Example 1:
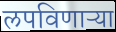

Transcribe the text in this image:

लपविणाऱ्या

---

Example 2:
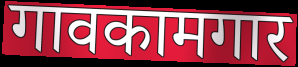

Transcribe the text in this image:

गावकामगार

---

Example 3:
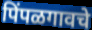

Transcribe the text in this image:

पिंपळगावचे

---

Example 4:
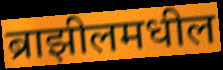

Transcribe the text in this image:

ब्राझीलमधील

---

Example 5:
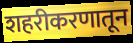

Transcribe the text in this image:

शहरीकरणातून